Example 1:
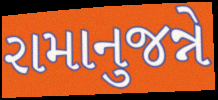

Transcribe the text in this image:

રામાનુજન્ને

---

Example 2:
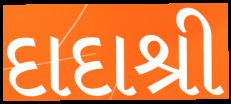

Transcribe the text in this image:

દાદાશ્રી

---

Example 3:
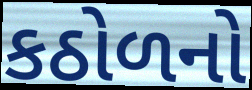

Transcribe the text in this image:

કઠોળનો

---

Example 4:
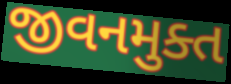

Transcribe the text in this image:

જીવનમુક્ત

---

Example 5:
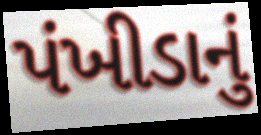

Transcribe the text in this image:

પંખીડાનું